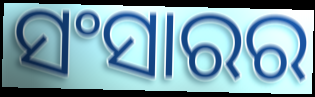
ସଂସାରର